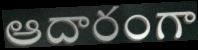
ఆదారంగా